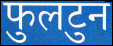
फुलटुन